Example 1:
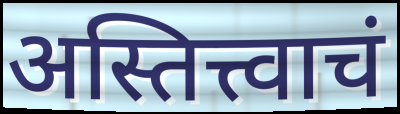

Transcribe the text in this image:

अस्तित्त्वाचं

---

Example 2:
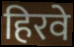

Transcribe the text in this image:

हिरवे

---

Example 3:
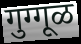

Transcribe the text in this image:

गुग्गूळ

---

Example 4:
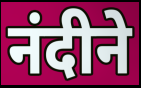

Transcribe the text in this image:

नंदीने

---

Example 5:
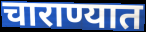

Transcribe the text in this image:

चाराण्यात